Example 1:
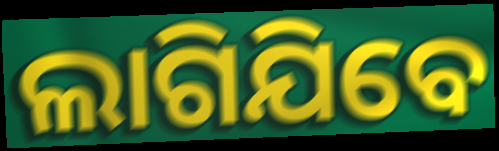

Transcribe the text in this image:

ଲାଗିଯିବେ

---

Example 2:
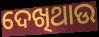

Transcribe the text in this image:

ଦେଖିଥାଉ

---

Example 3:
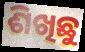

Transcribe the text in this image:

ଶିଖିଛୁ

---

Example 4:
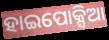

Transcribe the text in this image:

ହାଇପୋକ୍ସିଆ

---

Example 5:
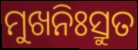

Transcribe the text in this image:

ମୁଖନିଃସ୍ରୁତ